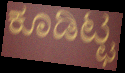
ಕೂಡಿಟ್ಟ